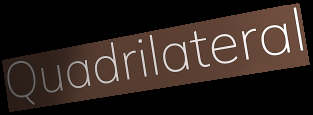
Quadrilateral